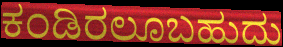
ಕಂಡಿರಲೂಬಹುದು